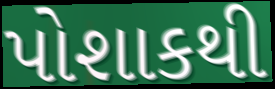
પોશાકથી